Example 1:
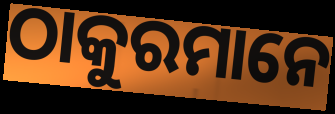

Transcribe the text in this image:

ଠାକୁରମାନେ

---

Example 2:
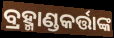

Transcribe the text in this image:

ବ୍ରହ୍ମାଣ୍ଡକର୍ତ୍ତାଙ୍କ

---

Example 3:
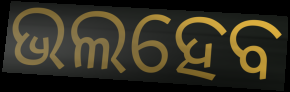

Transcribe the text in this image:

ଭଲହେବ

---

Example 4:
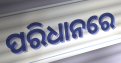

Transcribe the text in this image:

ପରିଧାନରେ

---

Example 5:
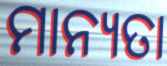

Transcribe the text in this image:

ମାନ୍ୟତା